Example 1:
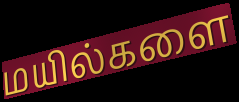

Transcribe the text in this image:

மயில்களை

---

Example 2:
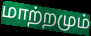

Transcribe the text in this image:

மாற்றமும்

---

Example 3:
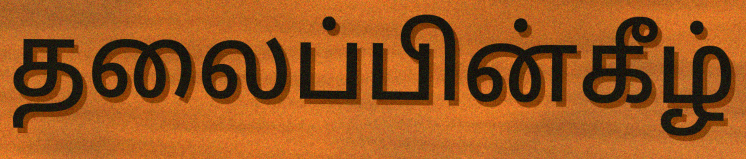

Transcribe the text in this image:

தலைப்பின்கீழ்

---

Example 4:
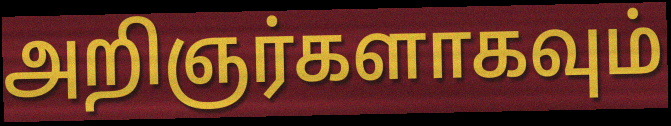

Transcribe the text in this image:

அறிஞர்களாகவும்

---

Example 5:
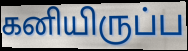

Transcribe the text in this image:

கனியிருப்ப